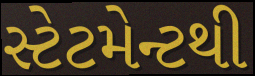
સ્ટેટમેન્ટથી